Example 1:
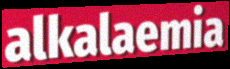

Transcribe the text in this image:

alkalaemia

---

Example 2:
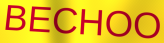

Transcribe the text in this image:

BECHOO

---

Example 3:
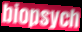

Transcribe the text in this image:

biopsych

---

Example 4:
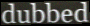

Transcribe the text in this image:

dubbed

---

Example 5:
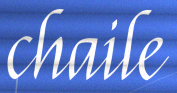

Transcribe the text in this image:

chaile